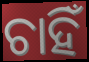
ଚାହିଁ